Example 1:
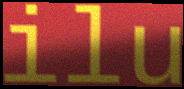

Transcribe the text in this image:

ilu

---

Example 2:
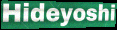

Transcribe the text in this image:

Hideyoshi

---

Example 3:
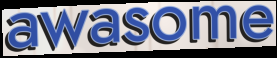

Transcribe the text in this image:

awasome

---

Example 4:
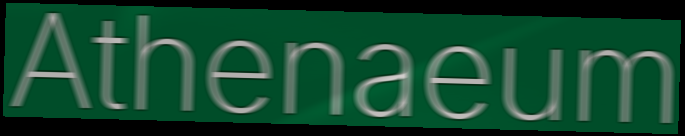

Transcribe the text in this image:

Athenaeum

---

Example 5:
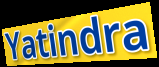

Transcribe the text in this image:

Yatindra